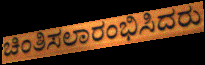
ಚಿಂತಿಸಲಾರಂಭಿಸಿದರು